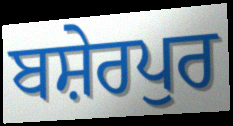
ਬਸ਼ੇਰਪੁਰ